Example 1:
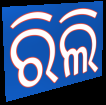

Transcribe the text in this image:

ରିଲି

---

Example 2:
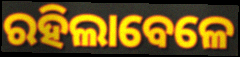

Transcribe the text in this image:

ରହିଲାବେଳେ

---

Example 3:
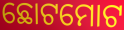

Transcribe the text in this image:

ଛୋଟମୋଟ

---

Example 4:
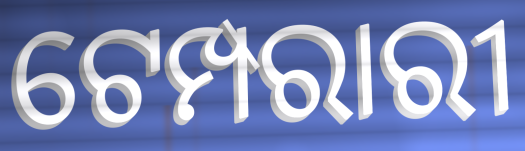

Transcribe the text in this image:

ଟେମ୍ପରାରୀ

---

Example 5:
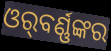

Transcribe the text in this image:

ଓର୍‌ବର୍ଣ୍ଣଙ୍କର